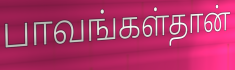
பாவங்கள்தான்